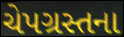
ચેપગ્રસ્તના